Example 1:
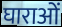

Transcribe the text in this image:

घाराओं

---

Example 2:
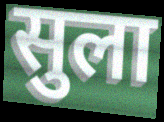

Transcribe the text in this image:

सुला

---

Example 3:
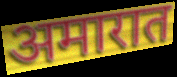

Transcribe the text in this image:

अमारात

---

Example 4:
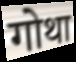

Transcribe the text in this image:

गोथा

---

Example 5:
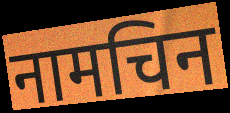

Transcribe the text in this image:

नामचिन